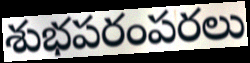
శుభపరంపరలు